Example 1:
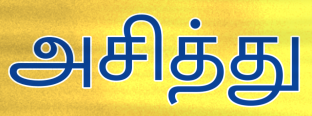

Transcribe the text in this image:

அசித்து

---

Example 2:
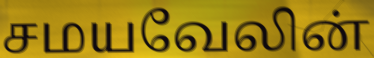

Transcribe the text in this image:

சமயவேலின்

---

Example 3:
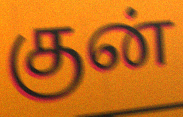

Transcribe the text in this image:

குன்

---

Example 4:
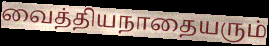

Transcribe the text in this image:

வைத்தியநாதையரும்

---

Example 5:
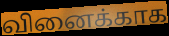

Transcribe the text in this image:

வினைக்காக